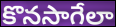
కొనసాగేలా